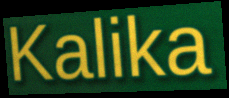
Kalika